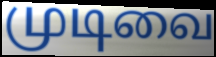
முடிவை